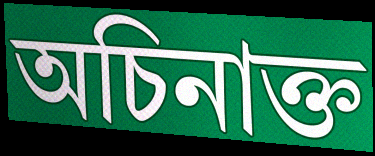
অচিনাক্ত